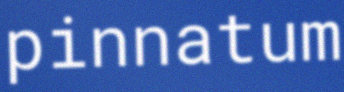
pinnatum